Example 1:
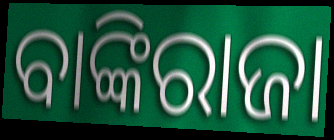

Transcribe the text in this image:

ବାଙ୍କିରାଜା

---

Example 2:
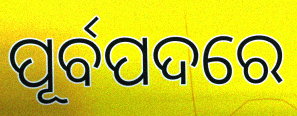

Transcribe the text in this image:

ପୂର୍ବପଦରେ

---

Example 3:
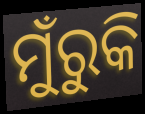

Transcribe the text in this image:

ମୁଁରୁକି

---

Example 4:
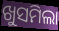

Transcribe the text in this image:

ଖୁସମିଲା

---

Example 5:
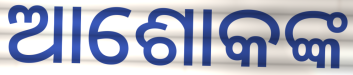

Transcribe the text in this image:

ଆଶୋକଙ୍କ